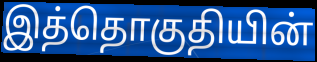
இத்தொகுதியின்